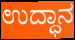
ಉದ್ಧಾನ